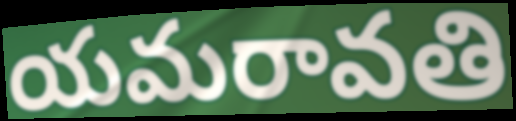
యమరావతి